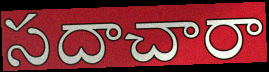
సదాచారా